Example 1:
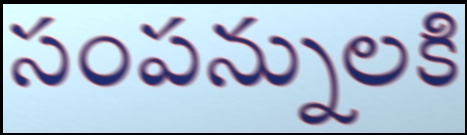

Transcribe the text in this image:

సంపన్నులకి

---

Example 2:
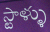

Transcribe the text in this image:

స్టాళ్ళు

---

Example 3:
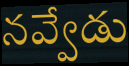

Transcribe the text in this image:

నవ్వేడు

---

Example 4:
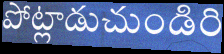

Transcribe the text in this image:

పోట్లాడుచుండిరి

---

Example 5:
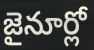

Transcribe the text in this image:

జైనూర్లో